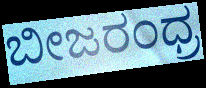
ಬೀಜರಂಧ್ರ